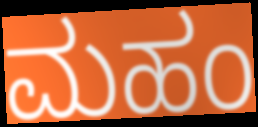
ಮಹಂ